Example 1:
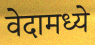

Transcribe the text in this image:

वेदामध्ये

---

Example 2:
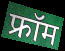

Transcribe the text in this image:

फ्रॉम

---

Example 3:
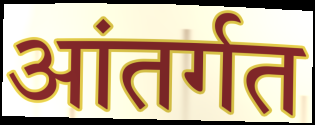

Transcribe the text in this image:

आंतर्गत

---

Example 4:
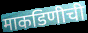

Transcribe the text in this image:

माकडिणीची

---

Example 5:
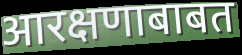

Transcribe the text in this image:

आरक्षणाबाबत